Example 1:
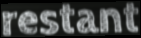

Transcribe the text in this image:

restant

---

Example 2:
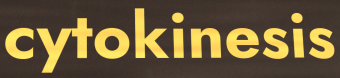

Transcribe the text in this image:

cytokinesis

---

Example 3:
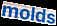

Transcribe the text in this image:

molds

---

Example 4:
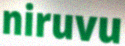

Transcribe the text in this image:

niruvu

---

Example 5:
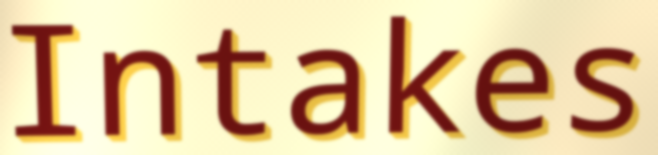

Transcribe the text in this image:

Intakes